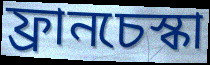
ফ্রানচেস্কা